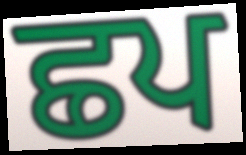
ਛਪ